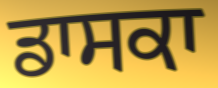
ਡਾਸਕਾ